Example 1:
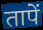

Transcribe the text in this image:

तापें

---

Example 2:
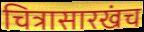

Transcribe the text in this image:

चित्रासारखंच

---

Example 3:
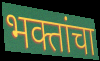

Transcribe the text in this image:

भक्तांचा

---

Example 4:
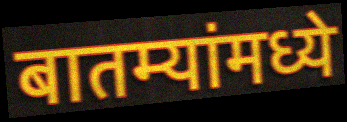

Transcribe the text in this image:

बातम्यांमध्ये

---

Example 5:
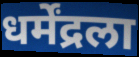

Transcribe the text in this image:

धर्मेंद्रला